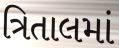
ત્રિતાલમાં